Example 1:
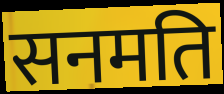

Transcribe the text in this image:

सनमति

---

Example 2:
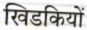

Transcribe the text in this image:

खिडकियों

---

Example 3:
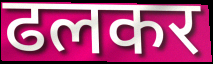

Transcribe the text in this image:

ढलकर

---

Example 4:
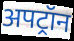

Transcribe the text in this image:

अपट्रॉन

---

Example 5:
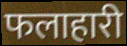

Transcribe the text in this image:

फलाहारी